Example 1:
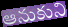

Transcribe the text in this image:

ఆనుకుని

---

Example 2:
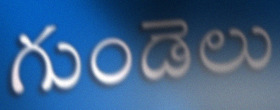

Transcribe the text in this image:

గుండెలు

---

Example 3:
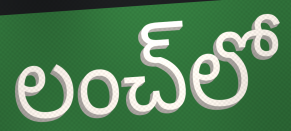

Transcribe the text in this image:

లంచ్‌లో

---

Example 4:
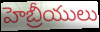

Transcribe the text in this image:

హెబ్రీయులు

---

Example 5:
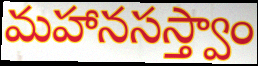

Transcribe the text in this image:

మహానసస్త్వాం